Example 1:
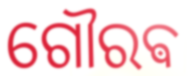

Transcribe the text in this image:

ଗୌରଵ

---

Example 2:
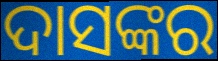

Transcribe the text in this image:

ଦାସଙ୍କର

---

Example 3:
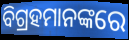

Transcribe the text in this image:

ବିଗ୍ରହମାନଙ୍କରେ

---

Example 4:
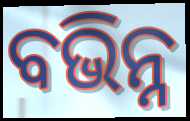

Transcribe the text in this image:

ବଭିନ୍ନ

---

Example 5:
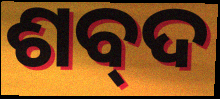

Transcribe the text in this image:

ଶବ୍‌ଦ